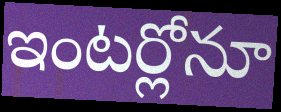
ఇంటర్లోనూ